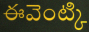
ఈవెంట్కి